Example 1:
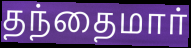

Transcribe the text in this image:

தந்தைமார்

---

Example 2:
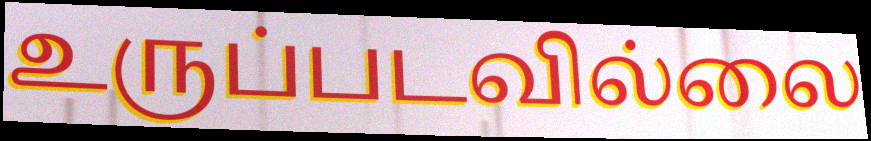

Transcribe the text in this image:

உருப்படவில்லை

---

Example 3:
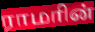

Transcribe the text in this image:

ராமரின்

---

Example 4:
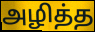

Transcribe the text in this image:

அழித்த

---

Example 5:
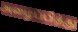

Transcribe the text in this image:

அழைப்பித்து